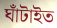
ঘাঁটাইত